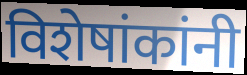
विशेषांकांनी